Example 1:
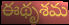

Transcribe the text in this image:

ఈథృశమ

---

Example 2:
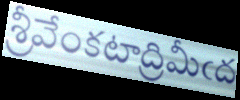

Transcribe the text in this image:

శ్రీవేంకటాద్రిమీఁద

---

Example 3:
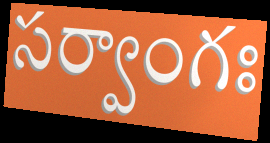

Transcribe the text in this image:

సర్వాంగః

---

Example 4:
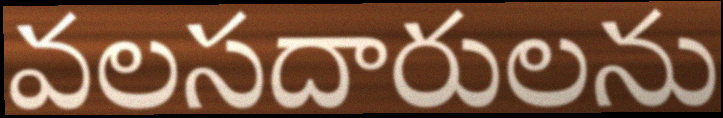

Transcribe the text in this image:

వలసదారులను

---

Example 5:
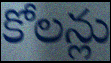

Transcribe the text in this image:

కోలన్లు